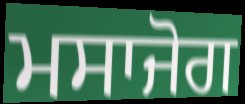
ਮਸਾਜੋਗ